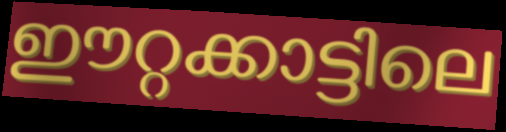
ഈറ്റക്കാട്ടിലെ